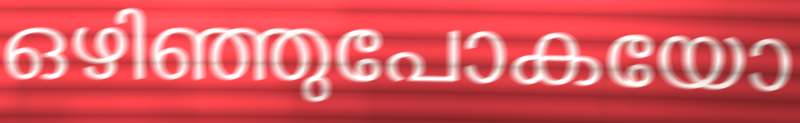
ഒഴിഞ്ഞുപോകയോ